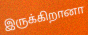
இருக்கிறானா